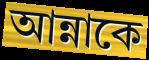
আন্নাকে